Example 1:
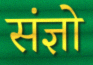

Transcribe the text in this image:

संज्ञो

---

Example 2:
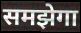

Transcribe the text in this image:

समझेगा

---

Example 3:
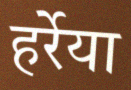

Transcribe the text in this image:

हर्रेया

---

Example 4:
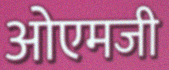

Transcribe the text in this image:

ओएमजी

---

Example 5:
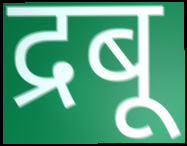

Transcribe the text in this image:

द्रबू